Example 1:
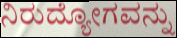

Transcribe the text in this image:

ನಿರುದ್ಯೋಗವನ್ನು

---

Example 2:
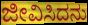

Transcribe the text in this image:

ಜೀವಿಸಿದನು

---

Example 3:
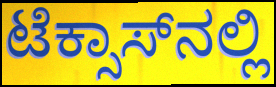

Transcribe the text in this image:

ಟೆಕ್ಸಾಸ್‌ನಲ್ಲಿ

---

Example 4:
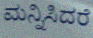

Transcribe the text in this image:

ಮನ್ನಿಸಿದರೆ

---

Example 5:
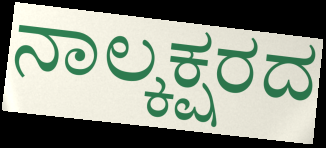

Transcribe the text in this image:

ನಾಲ್ಕಕ್ಷರದ